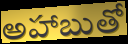
అహాబుతో